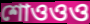
শোওওও